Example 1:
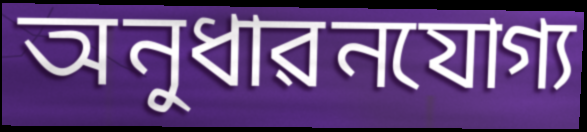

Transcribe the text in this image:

অনুধাৱনযোগ্য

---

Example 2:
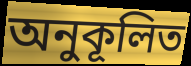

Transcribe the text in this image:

অনুকূলিত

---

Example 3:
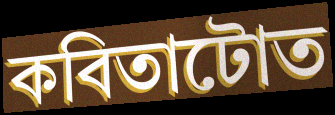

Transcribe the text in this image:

কবিতাটোত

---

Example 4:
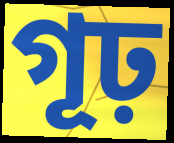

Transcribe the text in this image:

গূঢ়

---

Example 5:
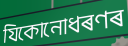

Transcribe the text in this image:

যিকোনোধৰণৰ